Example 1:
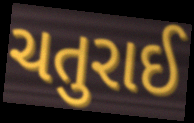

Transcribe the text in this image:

ચતુરાઈ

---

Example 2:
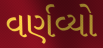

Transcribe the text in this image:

વર્ણવ્યો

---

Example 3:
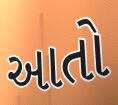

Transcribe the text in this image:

આતો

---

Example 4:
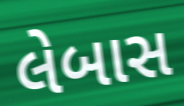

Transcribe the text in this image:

લેબાસ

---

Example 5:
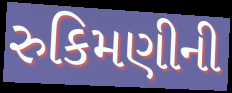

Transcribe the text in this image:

રુકિમણીની